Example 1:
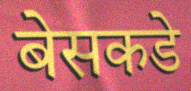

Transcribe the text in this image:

बेसकडे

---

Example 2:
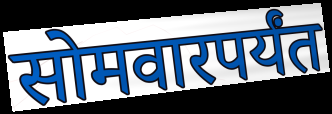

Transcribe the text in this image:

सोमवारपर्यंत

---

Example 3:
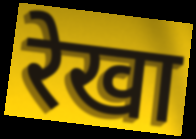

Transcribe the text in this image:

रेखा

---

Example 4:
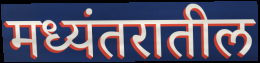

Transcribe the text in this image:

मध्यंतरातील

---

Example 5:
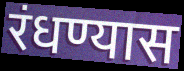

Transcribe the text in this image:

रंधण्यास